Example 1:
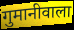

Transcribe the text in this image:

गुमानीवाला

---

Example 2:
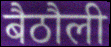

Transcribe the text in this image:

बैठौली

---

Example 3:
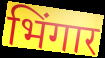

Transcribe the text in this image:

भिंगार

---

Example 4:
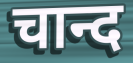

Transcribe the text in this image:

चान्द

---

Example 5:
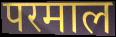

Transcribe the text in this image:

परमाल